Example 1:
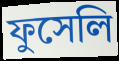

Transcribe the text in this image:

ফুসেলি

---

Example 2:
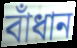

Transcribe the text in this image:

বাঁধান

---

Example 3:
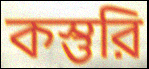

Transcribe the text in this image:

কস্তুরি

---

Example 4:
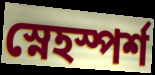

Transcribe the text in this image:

স্নেহস্পর্শ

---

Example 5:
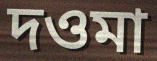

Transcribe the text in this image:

দওমা